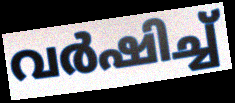
വർഷിച്ച്